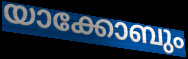
യാക്കോബും